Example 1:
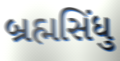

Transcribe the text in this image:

બ્રહ્મસિંધુ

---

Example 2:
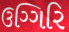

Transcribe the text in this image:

ઉગ્ગિરિ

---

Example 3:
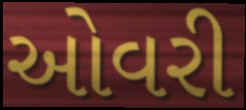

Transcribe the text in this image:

ઓવરી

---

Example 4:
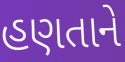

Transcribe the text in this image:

હણતાને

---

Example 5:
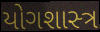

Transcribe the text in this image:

યોગશાસ્‍ત્ર